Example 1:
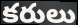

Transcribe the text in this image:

కరులు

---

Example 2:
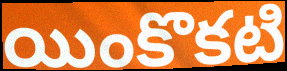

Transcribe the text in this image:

యింకొకటి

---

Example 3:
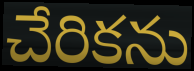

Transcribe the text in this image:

చేరికను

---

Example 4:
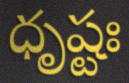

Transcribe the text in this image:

ధృష్టః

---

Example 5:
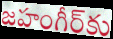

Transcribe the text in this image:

జహంగీర్‌కు